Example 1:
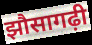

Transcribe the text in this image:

झौसागढ़ी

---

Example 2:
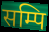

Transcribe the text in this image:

सम्पि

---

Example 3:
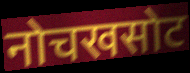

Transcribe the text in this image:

नोचखसोट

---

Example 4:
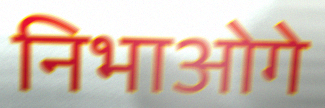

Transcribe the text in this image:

निभाओगे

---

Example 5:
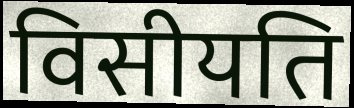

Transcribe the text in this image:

विसीयति